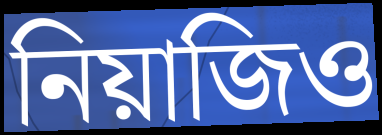
নিয়াজিও